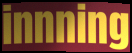
innning